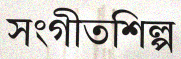
সংগীতশিল্প